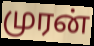
முரன்